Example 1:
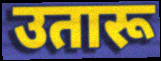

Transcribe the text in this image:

उतारू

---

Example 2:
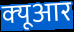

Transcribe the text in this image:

क्‍यूआर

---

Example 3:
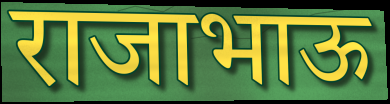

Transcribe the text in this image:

राजाभाऊ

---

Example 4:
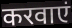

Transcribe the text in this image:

करवाएं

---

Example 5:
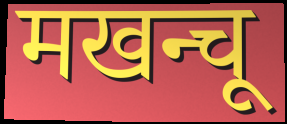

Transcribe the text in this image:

मखन्चू